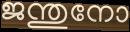
ജന്തുനോ